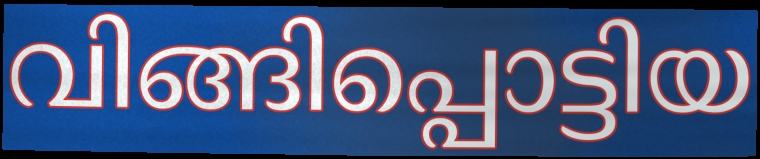
വിങ്ങിപ്പൊട്ടിയ